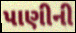
પાણીની